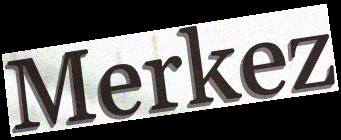
Merkez